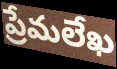
ప్రేమలేఖ